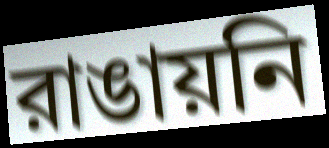
রাঙায়নি